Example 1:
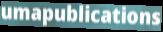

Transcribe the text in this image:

umapublications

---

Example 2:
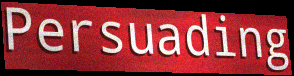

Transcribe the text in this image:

Persuading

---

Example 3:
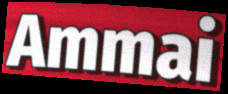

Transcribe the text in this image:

Ammai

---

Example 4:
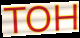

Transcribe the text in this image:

TOH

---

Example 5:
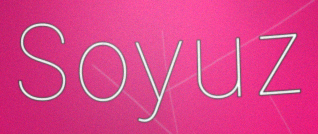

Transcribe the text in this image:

Soyuz